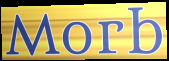
Morb